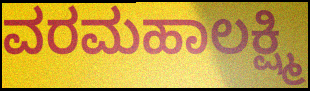
ವರಮಹಾಲಕ್ಷ್ಮಿ